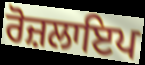
ਰੋਜ਼ਲਾਇਪ